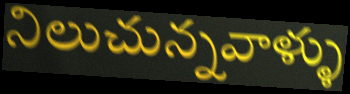
నిలుచున్నవాళ్ళు